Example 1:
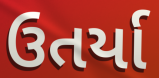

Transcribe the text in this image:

ઉતર્યા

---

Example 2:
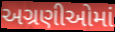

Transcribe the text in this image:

અગ્રણીઓમાં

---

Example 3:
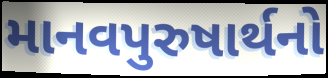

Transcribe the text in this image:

માનવપુરુષાર્થનો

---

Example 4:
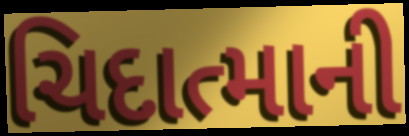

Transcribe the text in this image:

ચિદાત્માની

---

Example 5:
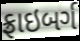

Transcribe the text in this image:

ફ્રાઇબર્ગ